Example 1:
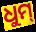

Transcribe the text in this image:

ଧୁମ୍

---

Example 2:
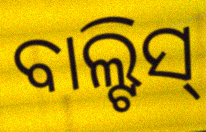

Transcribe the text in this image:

ବାଲ୍ଟିସ୍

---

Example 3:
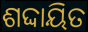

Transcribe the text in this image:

ଶଦ୍ଦାୟିତ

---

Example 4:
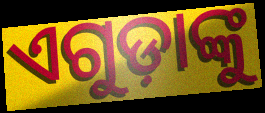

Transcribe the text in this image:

ଏଗୁଡ଼ାଙ୍କୁ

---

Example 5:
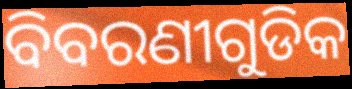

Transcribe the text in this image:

ବିବରଣୀଗୁଡିକ